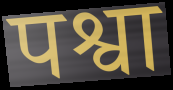
पश्वा